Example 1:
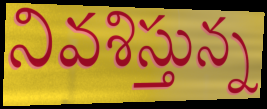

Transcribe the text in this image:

నివశిస్తున్న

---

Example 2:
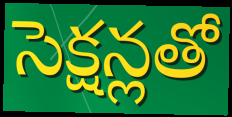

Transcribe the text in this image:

సెక్షన్లతో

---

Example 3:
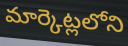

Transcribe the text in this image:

మార్కెట్లలోని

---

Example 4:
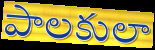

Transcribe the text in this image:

పాలకులా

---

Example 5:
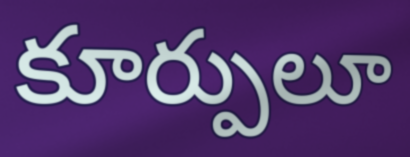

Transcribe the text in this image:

కూర్పులూ